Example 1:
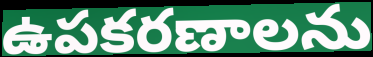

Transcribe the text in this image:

ఉపకరణాలను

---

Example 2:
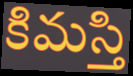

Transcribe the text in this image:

కిమస్తి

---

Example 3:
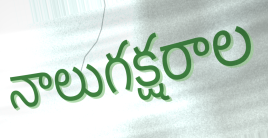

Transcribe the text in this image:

నాలుగక్షరాల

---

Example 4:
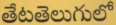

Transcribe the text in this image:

తేటతెలుగులో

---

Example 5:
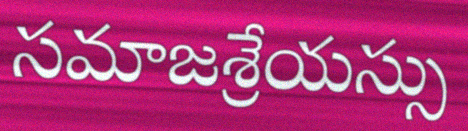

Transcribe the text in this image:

సమాజశ్రేయస్సు